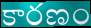
కారణం